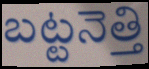
బట్టనెత్తి